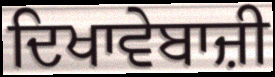
ਦਿਖਾਵੇਬਾਜ਼ੀ